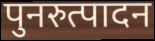
पुनरुत्पादन